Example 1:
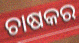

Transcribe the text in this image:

ଚାଷକର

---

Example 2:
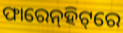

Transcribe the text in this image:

ଫାରେନ୍‌ହିଟ୍‌ରେ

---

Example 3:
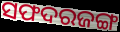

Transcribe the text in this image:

ସଫଦରଜଙ୍ଗ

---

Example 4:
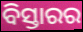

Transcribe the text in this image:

ବିସ୍ତାରର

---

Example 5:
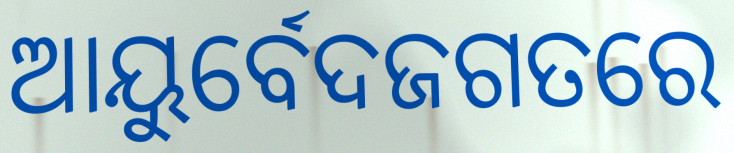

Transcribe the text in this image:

ଆୟୁର୍ବେଦଜଗତରେ